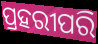
ପ୍ରହରୀପରି